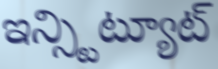
ఇన్స్టిట్యూట్